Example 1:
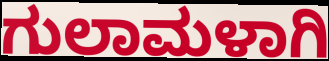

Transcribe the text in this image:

ಗುಲಾಮಳಾಗಿ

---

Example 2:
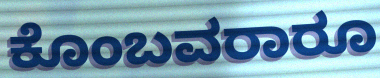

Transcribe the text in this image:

ಕೊಂಬವರಾರೂ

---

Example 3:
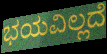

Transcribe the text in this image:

ಭಯವಿಲ್ಲದೆ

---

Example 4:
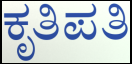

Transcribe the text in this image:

ಕೃತಿಪತಿ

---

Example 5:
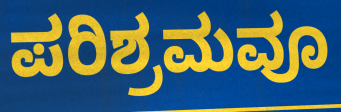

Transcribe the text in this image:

ಪರಿಶ್ರಮವೂ